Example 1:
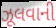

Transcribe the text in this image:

ઝૂલવાની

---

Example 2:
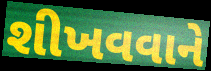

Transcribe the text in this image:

શીખવવાને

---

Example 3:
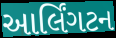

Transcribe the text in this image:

આર્લિંગટન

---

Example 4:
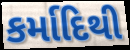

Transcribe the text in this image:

કર્માદિથી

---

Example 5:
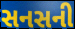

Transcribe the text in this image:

સનસની